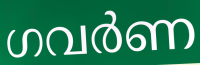
ഗവർണ